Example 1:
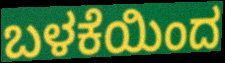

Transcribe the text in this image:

ಬಳಕೆಯಿಂದ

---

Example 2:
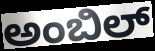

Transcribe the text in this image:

ಅಂಬಿಲ್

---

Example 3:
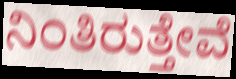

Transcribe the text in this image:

ನಿಂತಿರುತ್ತೇವೆ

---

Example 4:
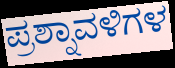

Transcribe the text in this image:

ಪ್ರಶ್ನಾವಳಿಗಳ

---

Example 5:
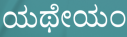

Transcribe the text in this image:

ಯಥೇಯಂ